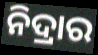
ନିଦ୍ରାର